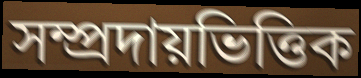
সম্প্রদায়ভিত্তিক